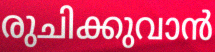
രുചിക്കുവാൻ